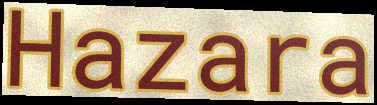
Hazara